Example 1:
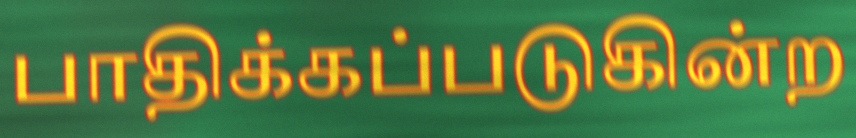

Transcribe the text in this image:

பாதிக்கப்படுகின்ற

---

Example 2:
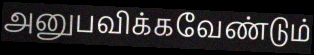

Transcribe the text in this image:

அனுபவிக்கவேண்டும்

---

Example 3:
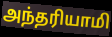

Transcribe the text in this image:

அந்தரியாமி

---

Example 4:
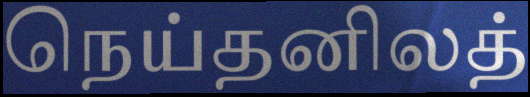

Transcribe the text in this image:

நெய்தனிலத்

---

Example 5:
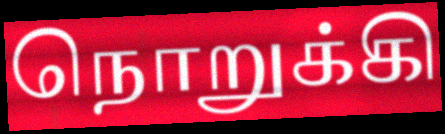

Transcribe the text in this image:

நொறுக்கி